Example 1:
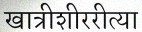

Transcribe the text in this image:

खात्रीशीररीत्या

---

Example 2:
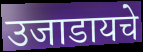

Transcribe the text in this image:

उजाडायचे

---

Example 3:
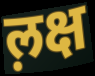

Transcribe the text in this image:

ल़क्ष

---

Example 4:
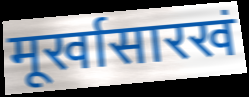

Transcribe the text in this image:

मूर्खासारखं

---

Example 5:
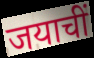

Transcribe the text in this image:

जयाचीं